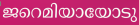
ജറെമിയായോടു